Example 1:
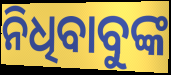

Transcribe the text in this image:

ନିଧିବାବୁଙ୍କ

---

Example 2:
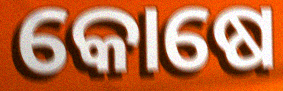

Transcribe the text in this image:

କୋଷେ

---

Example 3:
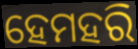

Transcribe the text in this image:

ହେମହରି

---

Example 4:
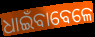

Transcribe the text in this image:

ଧାଇଁବାବେଳେ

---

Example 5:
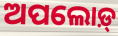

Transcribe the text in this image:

ଅପଲୋଡ଼୍